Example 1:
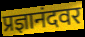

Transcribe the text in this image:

प्रज्ञानंदवर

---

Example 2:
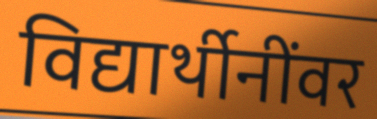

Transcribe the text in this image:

विद्यार्थीनींवर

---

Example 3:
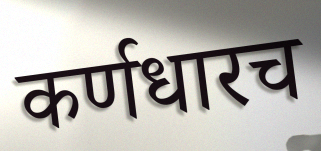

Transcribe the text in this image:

कर्णधारच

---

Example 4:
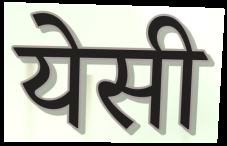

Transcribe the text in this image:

येसी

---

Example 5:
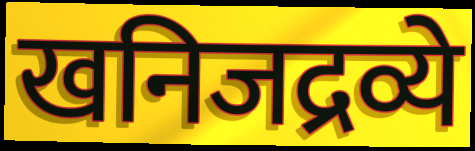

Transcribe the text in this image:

खनिजद्रव्ये